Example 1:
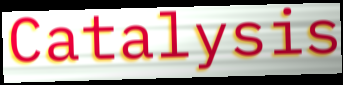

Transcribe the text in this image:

Catalysis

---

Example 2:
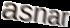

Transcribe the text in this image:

asnar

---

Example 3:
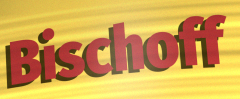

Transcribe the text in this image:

Bischoff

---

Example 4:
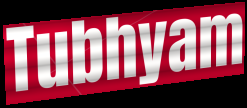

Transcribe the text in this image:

Tubhyam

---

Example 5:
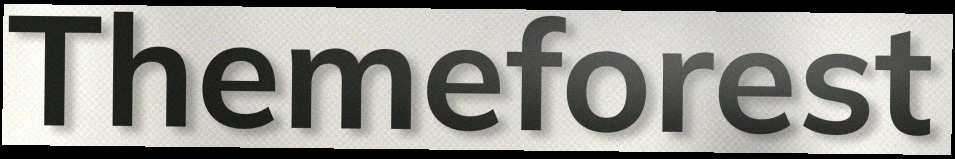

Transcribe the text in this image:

Themeforest